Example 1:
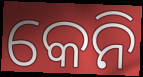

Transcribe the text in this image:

କେନି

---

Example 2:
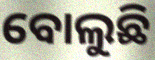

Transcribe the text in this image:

ବୋଲୁଛି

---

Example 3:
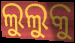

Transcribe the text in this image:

ଲୁଲୁକୁ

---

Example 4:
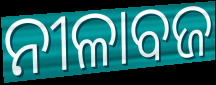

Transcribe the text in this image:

ନୀଳାବଜ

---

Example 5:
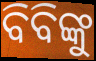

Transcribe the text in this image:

ବିବିଙ୍କୁ